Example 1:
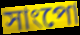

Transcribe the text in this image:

সাংপো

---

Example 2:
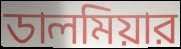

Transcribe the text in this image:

ডালমিয়ার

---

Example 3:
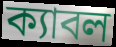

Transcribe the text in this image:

ক্যাবল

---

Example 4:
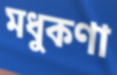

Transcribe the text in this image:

মধুকণা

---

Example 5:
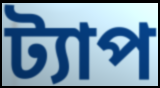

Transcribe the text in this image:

ট্যাপ